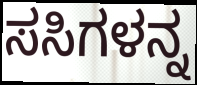
ಸಸಿಗಳನ್ನ